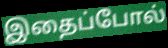
இதைப்போல்